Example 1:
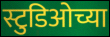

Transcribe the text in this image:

स्टुडिओच्या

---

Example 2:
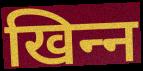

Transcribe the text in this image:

खिन्‍न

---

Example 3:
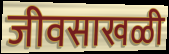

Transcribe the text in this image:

जीवसाखळी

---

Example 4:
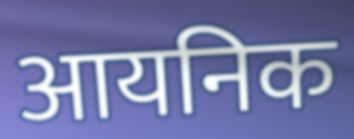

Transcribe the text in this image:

आयनिक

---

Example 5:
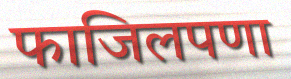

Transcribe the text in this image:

फाजिलपणा